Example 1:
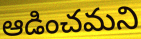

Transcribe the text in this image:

ఆడించమని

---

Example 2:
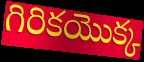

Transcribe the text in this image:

గిరికయొక్క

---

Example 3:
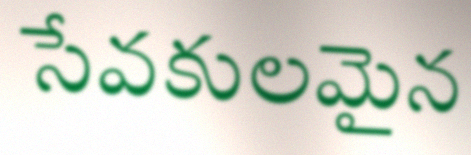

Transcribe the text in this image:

సేవకులమైన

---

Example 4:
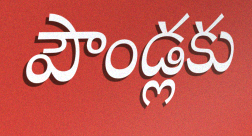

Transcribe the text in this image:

పౌండ్లకు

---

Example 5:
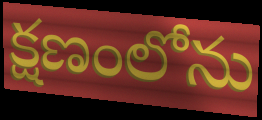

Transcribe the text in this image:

క్షణంలోను